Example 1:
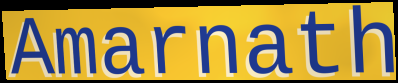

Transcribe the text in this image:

Amarnath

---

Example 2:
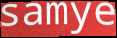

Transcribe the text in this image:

samye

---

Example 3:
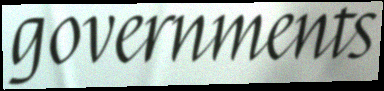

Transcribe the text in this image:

governments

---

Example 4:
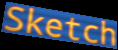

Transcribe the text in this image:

Sketch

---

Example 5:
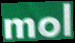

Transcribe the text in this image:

mol